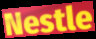
Nestle